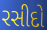
રસીદો